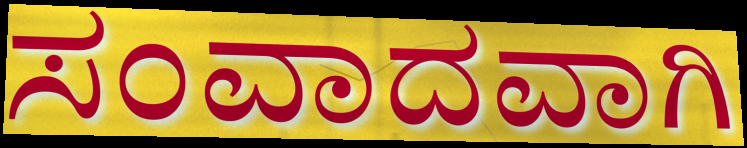
ಸಂವಾದವಾಗಿ